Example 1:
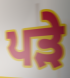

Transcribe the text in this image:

ਪੜੇ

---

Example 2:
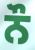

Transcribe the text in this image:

ਨੌ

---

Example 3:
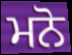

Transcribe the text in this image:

ਮਨੋ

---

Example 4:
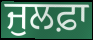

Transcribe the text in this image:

ਜੁਲਫ਼ਾ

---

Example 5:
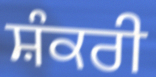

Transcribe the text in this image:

ਸ਼ੰਕਰੀ